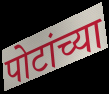
पोटांच्या